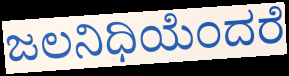
ಜಲನಿಧಿಯೆಂದರೆ